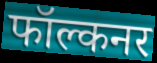
फॉल्कनर